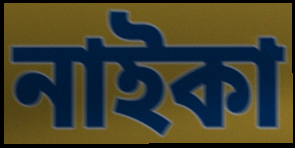
নাইকা